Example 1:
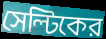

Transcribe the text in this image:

সেল্টিকের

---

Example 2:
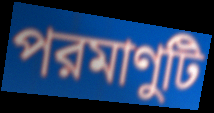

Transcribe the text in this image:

পরমাণুটি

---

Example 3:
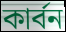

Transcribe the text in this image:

কার্বন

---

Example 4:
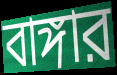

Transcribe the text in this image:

বাঙ্গার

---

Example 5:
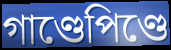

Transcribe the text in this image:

গাণ্ডেপিণ্ডে